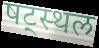
षट्स्थल